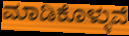
ಮಾಡಿಕೊಳ್ಳುವೆ